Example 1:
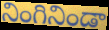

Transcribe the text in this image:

నింగినిండా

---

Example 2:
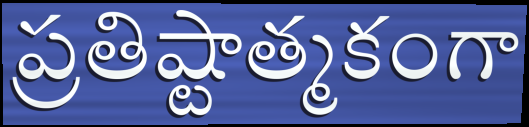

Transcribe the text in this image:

ప్రతిష్టాత్మకంగా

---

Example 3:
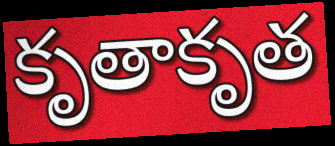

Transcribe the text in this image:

కృతాకృత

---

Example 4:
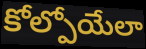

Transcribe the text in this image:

కోల్పోయేలా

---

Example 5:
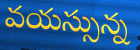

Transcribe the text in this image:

వయస్సున్న